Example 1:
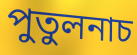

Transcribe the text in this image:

পুতুলনাচ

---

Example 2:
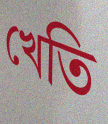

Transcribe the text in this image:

খেতি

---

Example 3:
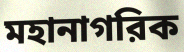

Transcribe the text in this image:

মহানাগরিক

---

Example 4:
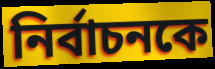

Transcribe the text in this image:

নির্বাচনকে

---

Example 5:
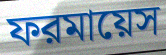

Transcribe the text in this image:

ফরমায়েস